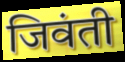
जिवंती